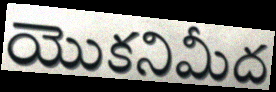
యొకనిమీద